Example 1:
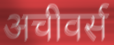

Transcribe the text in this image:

अचीवर्स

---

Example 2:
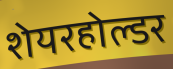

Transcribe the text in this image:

शेयरहोल्डर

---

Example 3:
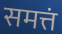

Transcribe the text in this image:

समत्तं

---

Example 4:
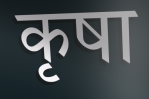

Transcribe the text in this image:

कृषा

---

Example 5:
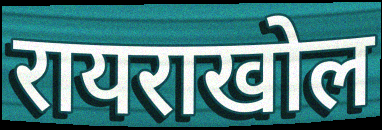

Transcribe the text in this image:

रायराखोल